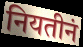
नियतीनं